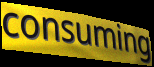
consuming